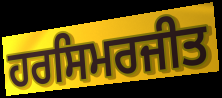
ਹਰਸਿਮਰਜੀਤ